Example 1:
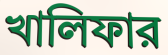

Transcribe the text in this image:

খালিফার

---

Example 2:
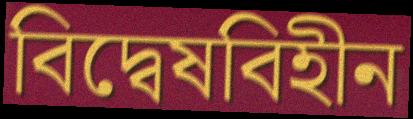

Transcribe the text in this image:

বিদ্বেষবিহীন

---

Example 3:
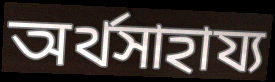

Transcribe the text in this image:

অর্থসাহায্য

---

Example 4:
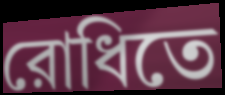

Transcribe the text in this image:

রোধিতে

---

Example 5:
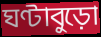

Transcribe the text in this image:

ঘণ্টাবুড়ো